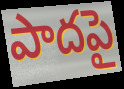
పాదపై